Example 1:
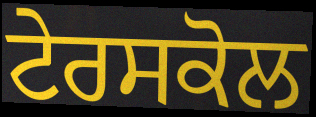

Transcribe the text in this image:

ਟੇਰਸਕੋਲ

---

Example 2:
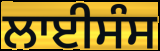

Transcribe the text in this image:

ਲਾਈਸੰਸ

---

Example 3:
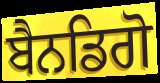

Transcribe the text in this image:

ਬੈਨਡਿਗੋ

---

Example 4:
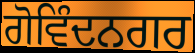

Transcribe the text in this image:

ਗੋਵਿੰਦਨਗਰ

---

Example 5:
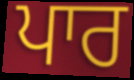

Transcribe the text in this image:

ਪਾਰ